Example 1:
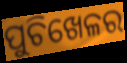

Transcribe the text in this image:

ପୁଚିଖେଳର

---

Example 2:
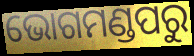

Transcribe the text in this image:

ଭୋଗମଣ୍ଡପରୁ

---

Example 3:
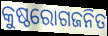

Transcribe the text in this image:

କୁଷ୍ଠରୋଗଜନିତ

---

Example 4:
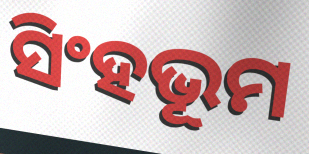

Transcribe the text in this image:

ସିଂହଭୂମ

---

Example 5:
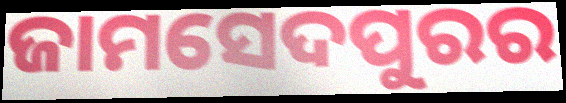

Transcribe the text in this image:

ଜାମସେଦପୁରର